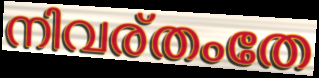
നിവര്തംതേ